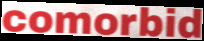
comorbid